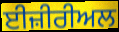
ਈਜ਼ੀਰੀਅਲ